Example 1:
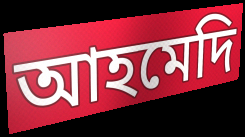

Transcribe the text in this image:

আহমেদি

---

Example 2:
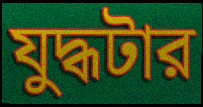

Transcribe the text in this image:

যুদ্ধটার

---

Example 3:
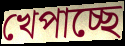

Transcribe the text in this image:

খেপাচ্ছে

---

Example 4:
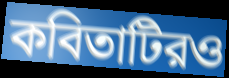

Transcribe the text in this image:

কবিতাটিরও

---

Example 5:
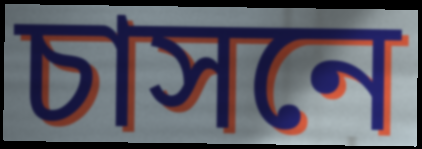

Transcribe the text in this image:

চাসনে